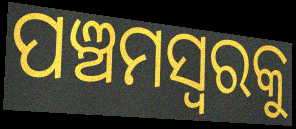
ପଞ୍ଚମସ୍ୱରକୁ